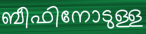
ബീഫിനോടുള്ള